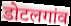
डोटलगांव